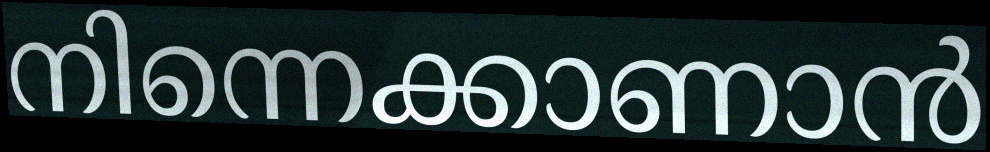
നിന്നെക്കാണാൻ